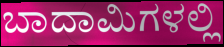
ಬಾದಾಮಿಗಳಲ್ಲಿ